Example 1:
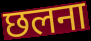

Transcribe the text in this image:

छलना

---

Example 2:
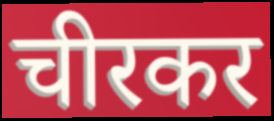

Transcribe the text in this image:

चीरकर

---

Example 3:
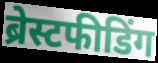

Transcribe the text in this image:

ब्रेस्टफीडिंग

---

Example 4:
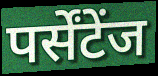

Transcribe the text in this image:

पर्सेंटेंज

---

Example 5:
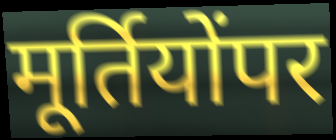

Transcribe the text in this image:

मूर्तियोंपर